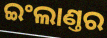
ଇଂଲାଣ୍ତର